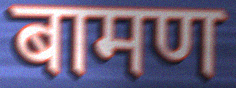
बामण